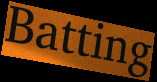
Batting